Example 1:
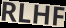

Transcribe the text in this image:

RLHF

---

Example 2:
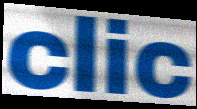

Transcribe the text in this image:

clic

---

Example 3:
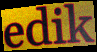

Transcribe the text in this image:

edik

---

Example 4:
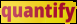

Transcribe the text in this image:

quantify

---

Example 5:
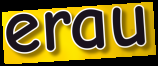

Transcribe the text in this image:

erau